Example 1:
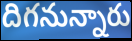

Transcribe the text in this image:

దిగనున్నారు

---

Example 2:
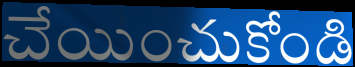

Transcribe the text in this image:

చేయించుకోండి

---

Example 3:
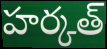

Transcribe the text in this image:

హర్కత్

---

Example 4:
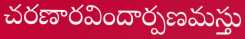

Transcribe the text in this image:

చరణారవిందార్పణమస్తు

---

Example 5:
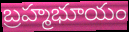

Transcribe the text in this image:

బ్రహ్మభూయం